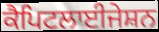
ਕੈਪਿਟਲਾਈਜੇਸ਼ਨ